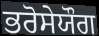
ਭਰੋਸੇਯੌਗ